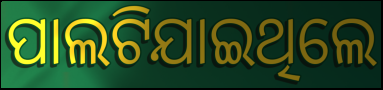
ପାଲଟିଯାଇଥିଲେ